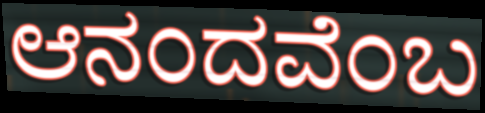
ಆನಂದವೆಂಬ